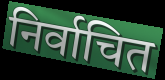
निर्वाचित